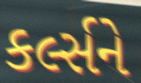
કર્લ્સને